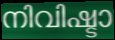
നിവിഷ്ടാ